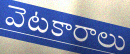
వెటకారాలు